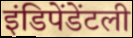
इंडिपेंडेंटली